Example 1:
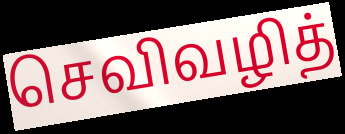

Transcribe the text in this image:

செவிவழித்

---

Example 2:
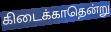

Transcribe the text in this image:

கிடைக்காதென்று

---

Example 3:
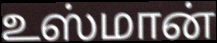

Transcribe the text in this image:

உஸ்மான்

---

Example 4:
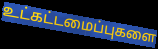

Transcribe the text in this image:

உட்கட்டமைப்புகளை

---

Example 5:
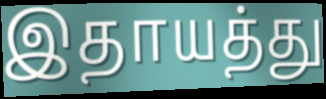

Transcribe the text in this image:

இதாயத்து